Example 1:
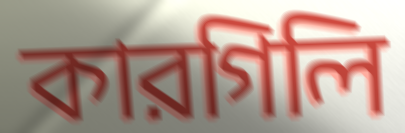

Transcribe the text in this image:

কারগিলি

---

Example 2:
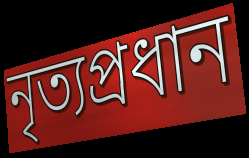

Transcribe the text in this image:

নৃত্যপ্রধান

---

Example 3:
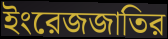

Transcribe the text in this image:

ইংরেজজাতির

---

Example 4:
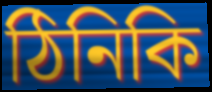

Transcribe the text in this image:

ঠিনিকি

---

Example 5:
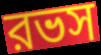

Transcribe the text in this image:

রভস